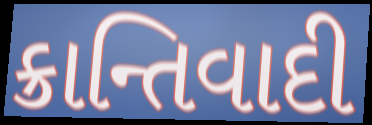
ક્રાન્તિવાદી